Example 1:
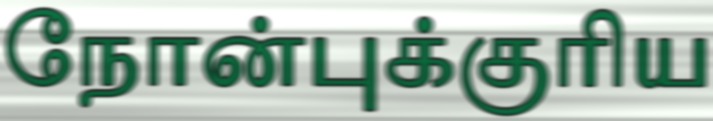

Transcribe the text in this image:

நோன்புக்குரிய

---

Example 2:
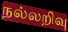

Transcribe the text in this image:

நல்லறிவு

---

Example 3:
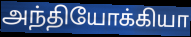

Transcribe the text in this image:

அந்தியோக்கியா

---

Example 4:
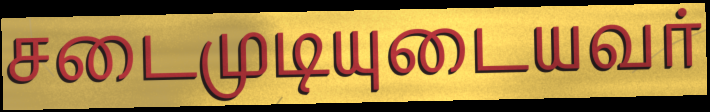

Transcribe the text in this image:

சடைமுடியுடையவர்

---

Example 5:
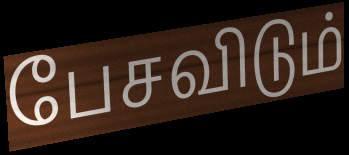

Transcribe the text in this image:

பேசவிடும்